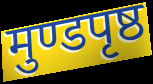
मुण्डपृष्ठ